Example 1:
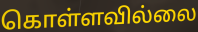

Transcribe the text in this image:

கொள்ளவில்லை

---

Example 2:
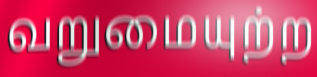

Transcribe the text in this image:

வறுமையுற்ற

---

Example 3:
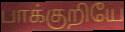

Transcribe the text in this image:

பாக்குறியே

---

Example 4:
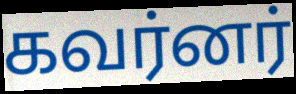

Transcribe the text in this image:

கவர்னர்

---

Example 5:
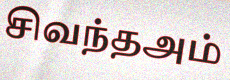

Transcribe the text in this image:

சிவந்தஅம்